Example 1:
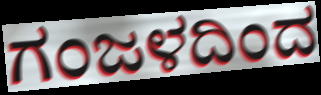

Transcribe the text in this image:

ಗಂಜಳದಿಂದ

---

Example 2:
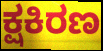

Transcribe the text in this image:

ಕ್ಷಕಿರಣ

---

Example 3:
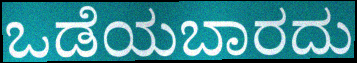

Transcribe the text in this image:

ಒಡೆಯಬಾರದು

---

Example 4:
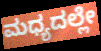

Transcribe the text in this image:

ಮಧ್ಯದಲ್ಲೇ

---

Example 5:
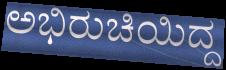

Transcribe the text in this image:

ಅಭಿರುಚಿಯಿದ್ದ